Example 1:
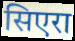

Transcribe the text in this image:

सिएरा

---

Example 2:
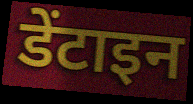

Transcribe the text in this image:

डेंटाइन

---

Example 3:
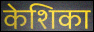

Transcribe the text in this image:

केशिका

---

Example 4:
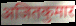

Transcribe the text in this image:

अजितकुमार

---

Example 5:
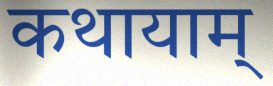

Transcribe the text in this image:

कथायाम्